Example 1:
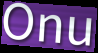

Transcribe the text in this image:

Onu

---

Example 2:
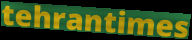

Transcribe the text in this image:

tehrantimes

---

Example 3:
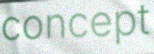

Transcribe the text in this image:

concept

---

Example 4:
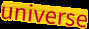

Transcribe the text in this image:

universe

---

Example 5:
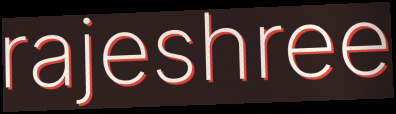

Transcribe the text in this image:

rajeshree